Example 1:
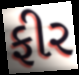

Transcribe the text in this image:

ફીર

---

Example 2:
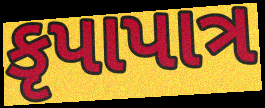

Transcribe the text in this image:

કૃપાપાત્ર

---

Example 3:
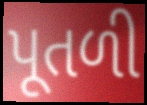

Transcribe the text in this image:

પૂતળી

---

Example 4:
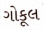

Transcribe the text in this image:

ગોકૂલ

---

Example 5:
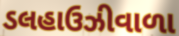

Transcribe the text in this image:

ડલહાઉઝીવાળા